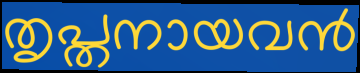
തൃപ്തനായവൻ